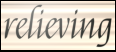
relieving